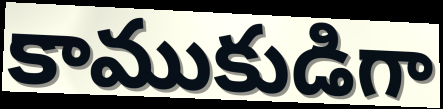
కాముకుడిగా